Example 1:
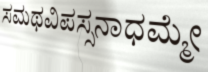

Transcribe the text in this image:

ಸಮಥವಿಪಸ್ಸನಾಧಮ್ಮೇ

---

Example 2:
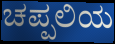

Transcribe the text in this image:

ಚಪ್ಪಲಿಯ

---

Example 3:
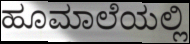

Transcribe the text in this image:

ಹೂಮಾಲೆಯಲ್ಲಿ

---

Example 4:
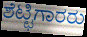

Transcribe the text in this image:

ಶೆಟ್ಟಿಗಾರರು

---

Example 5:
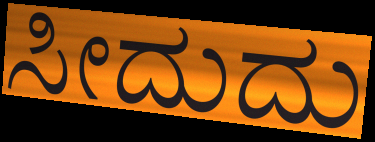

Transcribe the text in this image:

ಸೀದುದು